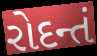
રોદન્તં